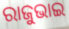
ରାଜୁଭାଇ